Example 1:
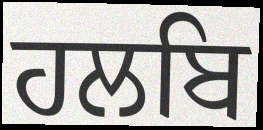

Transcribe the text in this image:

ਹਲਬਿ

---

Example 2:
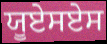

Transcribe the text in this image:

ਯੂਏਸਏਸ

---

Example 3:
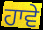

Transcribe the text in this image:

ਹਾਵੇ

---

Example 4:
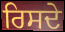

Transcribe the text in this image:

ਰਿਸਦੇ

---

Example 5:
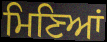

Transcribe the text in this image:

ਮਿਣਿਆਂ